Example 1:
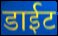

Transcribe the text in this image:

डाईट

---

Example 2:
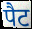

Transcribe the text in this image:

पैट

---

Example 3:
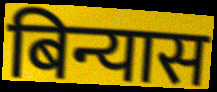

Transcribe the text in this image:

बिन्यास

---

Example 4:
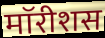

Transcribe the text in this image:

मॉरीशस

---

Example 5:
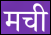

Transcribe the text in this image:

मची